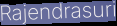
Rajendrasuri